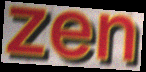
zen